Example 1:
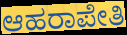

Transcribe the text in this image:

ಆಹರಾಪೇತಿ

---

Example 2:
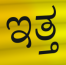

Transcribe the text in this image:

ಇತ್ತ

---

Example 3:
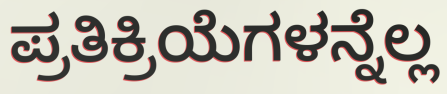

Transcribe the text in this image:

ಪ್ರತಿಕ್ರಿಯೆಗಳನ್ನೆಲ್ಲ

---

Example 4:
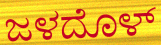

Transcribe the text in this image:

ಜಳದೊಳ್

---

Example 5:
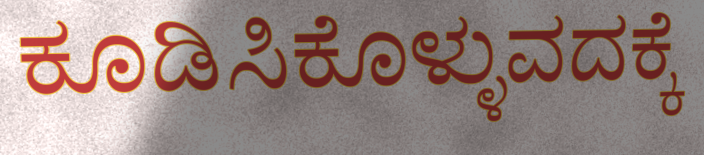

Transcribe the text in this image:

ಕೂಡಿಸಿಕೊಳ್ಳುವದಕ್ಕೆ